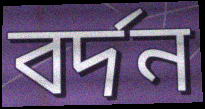
বর্দন